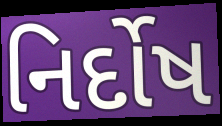
નિર્દોષ